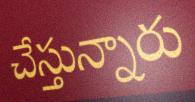
చేస్తున్నారు